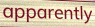
apparently